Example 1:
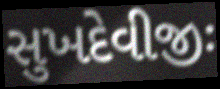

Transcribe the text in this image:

સુખદેવીજીઃ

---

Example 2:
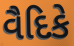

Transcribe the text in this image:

વૈદિકે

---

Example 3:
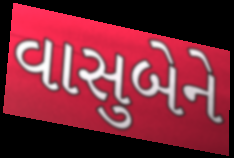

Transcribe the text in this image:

વાસુબેને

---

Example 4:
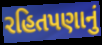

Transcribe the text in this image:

રહિતપણાનું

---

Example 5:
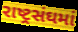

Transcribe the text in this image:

રાષ્ટ્રસંઘમાં